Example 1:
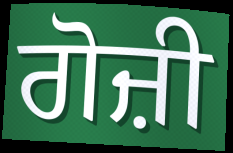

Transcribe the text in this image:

ਗੋਜ਼ੀ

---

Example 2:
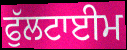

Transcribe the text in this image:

ਫੁੱਲਟਾਈਮ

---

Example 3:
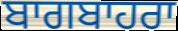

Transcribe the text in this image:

ਬਾਗਬਾਹਰਾ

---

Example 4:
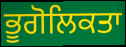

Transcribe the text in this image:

ਭੂਗੋਲਿਕਤਾ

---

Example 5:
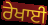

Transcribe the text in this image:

ਰੇਖਾਈ